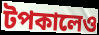
টপকালেও